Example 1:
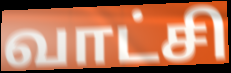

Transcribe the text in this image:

வாட்சி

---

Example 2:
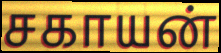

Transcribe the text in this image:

சகாயன்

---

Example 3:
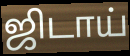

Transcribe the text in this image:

ஜிடாய்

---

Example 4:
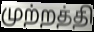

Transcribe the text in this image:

முற்றத்தி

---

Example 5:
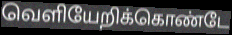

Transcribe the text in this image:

வெளியேறிக்கொண்டே